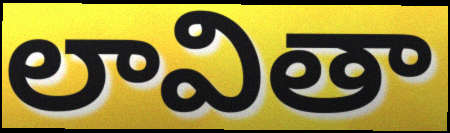
లావితా